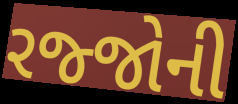
રજ્જોની